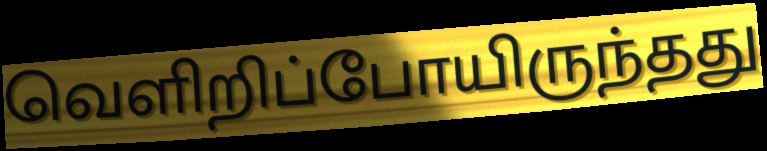
வெளிறிப்போயிருந்தது